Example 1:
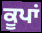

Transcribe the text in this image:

ਕੂਪਾਂ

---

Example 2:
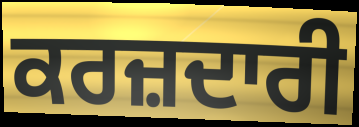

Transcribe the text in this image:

ਕਰਜ਼ਦਾਰੀ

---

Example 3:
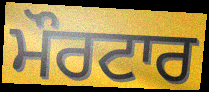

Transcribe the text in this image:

ਮੌਰਟਾਰ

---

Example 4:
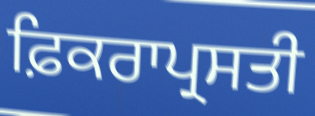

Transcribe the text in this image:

ਫ਼ਿਕਰਾਪ੍ਰਸਤੀ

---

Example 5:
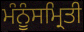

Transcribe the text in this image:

ਮੰਨੂੰਸਮ੍ਰਿਤੀ